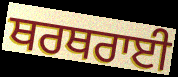
ਥਰਥਰਾਈ